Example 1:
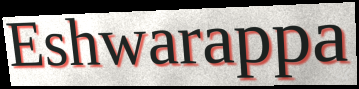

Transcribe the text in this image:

Eshwarappa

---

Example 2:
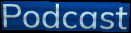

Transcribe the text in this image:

Podcast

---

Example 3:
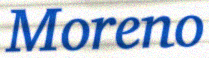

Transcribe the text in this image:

Moreno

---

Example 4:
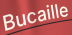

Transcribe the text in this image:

Bucaille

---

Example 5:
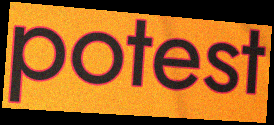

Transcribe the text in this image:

potest